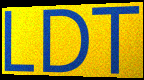
LDT